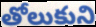
తోలుకుని